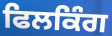
ਫਿਲਕਿੰਗ